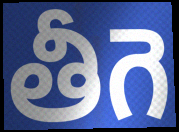
తీగె